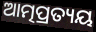
ଆତ୍ମପ୍ରତ୍ୟୟ